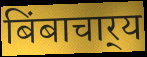
बिंबाचार्य